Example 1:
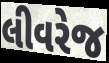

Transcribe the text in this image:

લીવરેજ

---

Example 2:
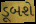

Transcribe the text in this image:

ડૂબશે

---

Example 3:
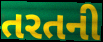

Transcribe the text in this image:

તરતની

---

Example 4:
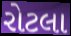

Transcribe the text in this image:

રોટલા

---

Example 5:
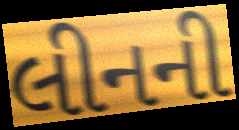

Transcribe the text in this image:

લીનની